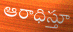
ఆరాధిస్తూ